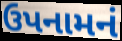
ઉપનામનં